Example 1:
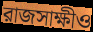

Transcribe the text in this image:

রাজসাক্ষীও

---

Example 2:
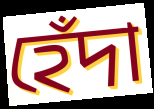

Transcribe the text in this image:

হেঁদা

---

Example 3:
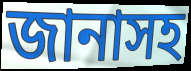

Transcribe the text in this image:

জানাসহ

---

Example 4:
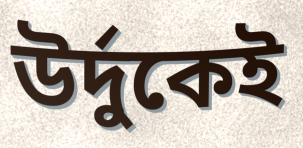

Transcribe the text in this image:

উর্দুকেই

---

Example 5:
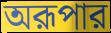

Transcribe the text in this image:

অরূপার